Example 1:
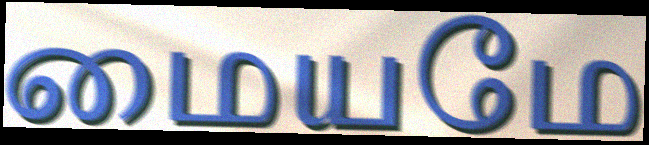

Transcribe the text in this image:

மையமே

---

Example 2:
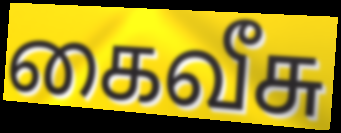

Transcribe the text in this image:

கைவீசு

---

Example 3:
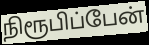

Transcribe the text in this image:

நிரூபிப்பேன்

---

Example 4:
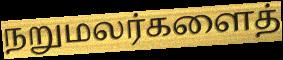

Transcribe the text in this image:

நறுமலர்களைத்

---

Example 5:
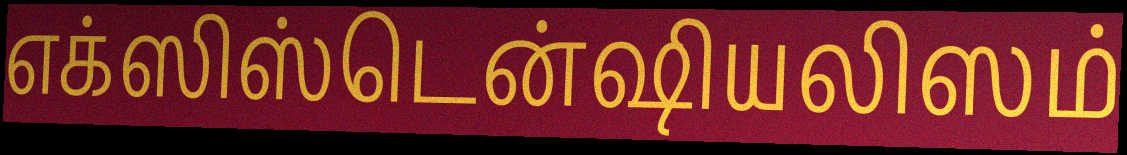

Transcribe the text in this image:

எக்ஸிஸ்டென்ஷியலிஸம்